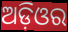
ଅଡ଼ିଓର